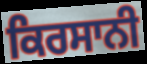
ਕਿਰਸਾਨੀ